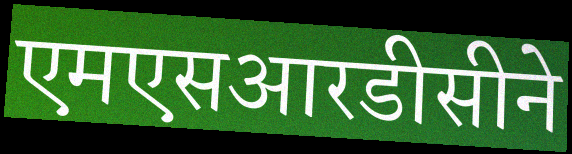
एमएसआरडीसीने